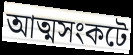
আত্মসংকটে